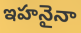
ఇహనైనా